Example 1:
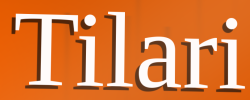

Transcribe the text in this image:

Tilari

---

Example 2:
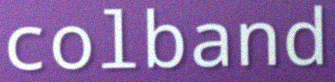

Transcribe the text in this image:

colband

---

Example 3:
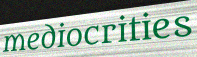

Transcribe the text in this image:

mediocrities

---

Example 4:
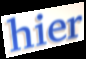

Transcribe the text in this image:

hier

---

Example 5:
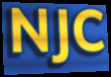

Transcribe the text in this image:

NJC